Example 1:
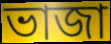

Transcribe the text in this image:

ভাজা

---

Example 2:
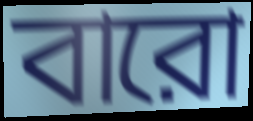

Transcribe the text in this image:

বারো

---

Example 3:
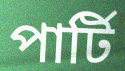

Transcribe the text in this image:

পার্টি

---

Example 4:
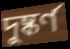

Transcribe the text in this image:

দুষ্কর্ণ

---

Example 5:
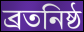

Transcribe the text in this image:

ব্রতনিষ্ঠ